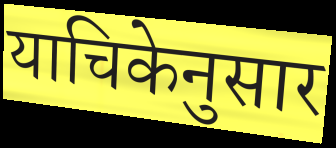
याचिकेनुसार